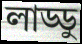
লাড্ডু